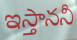
ఇస్తాననీ